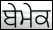
ਬੇਮੇਕ